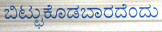
ಬಿಟ್ಟುಕೊಡಬಾರದೆಂದು